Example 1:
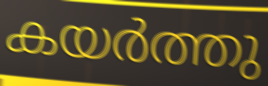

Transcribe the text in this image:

കയർത്തു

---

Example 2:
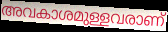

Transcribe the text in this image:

അവകാശമുള്ളവരാണ്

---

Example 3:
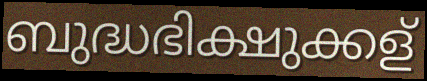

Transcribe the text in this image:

ബുദ്ധഭിക്ഷുക്കള്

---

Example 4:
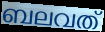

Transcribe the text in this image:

ബലവത്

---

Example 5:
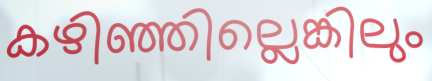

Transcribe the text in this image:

കഴിഞ്ഞില്ലെങ്കിലും